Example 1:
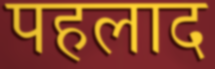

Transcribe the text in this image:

पहलाद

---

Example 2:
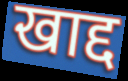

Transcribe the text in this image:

खाद्द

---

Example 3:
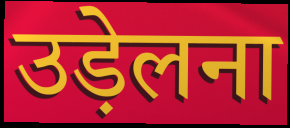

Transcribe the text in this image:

उड़ेलना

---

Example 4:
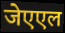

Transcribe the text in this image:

जेएएल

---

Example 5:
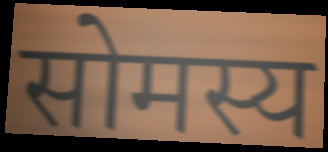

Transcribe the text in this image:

सोमस्य